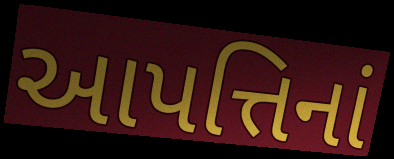
આપત્તિનાં